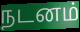
நடனம்